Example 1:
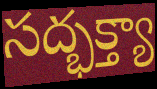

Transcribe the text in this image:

సద్భక్త్యా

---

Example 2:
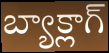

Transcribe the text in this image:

బ్యాక్లాగ్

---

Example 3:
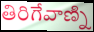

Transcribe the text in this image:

తిరిగేవాణ్ని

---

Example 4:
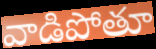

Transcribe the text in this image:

వాడిపోతూ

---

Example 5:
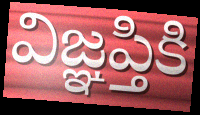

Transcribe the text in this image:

విజ్ఞప్తికి